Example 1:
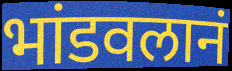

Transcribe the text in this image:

भांडवलानं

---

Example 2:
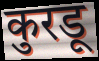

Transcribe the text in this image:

कुरडू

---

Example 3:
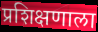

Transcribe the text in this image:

प्रशिक्षणाला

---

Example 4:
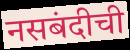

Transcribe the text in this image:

नसबंदीची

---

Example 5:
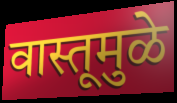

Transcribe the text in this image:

वास्तूमुळे